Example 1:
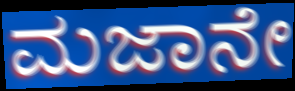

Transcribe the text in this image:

ಮಜಾನೇ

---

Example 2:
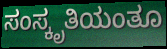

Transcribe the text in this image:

ಸಂಸ್ಕೃತಿಯಂತೂ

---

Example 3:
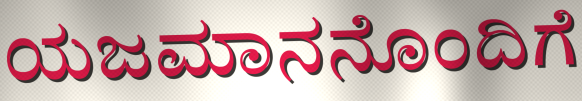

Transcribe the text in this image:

ಯಜಮಾನನೊಂದಿಗೆ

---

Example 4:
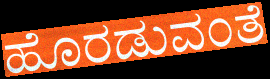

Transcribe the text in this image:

ಹೊರಡುವಂತೆ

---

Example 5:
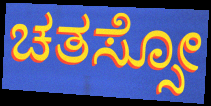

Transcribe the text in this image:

ಚತಸ್ಸೋ